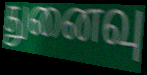
துனைவு